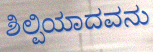
ಶಿಲ್ಪಿಯಾದವನು